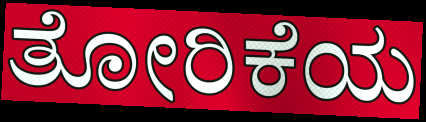
ತೋರಿಕೆಯ